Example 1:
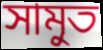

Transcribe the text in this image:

সামুত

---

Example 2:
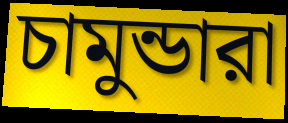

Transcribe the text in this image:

চামুন্ডারা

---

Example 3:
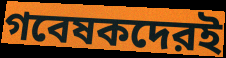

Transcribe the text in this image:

গবেষকদেরই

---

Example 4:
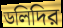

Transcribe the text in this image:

ডলিদির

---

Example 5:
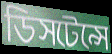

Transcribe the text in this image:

ডিসটেন্সে